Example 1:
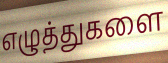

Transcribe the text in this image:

எழுத்துகளை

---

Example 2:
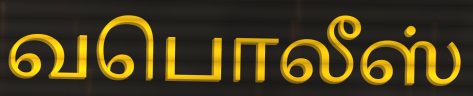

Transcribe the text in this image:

வபொலீஸ்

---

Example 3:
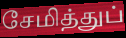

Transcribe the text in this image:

சேமித்துப்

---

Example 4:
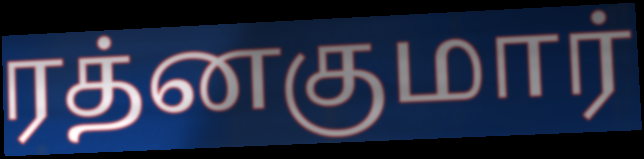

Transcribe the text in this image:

ரத்னகுமார்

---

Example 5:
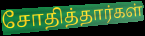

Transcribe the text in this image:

சோதித்தார்கள்